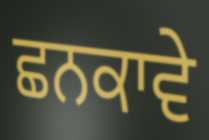
ਛਨਕਾਵੇ